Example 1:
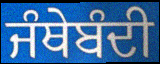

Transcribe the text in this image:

ਜੰਥੇਬੰਦੀ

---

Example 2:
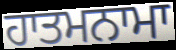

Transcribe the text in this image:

ਹਾਤਮਨਾਮਾ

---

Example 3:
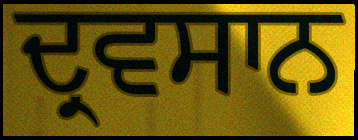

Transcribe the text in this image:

ਦ੍ਰਵਸਾਨ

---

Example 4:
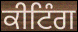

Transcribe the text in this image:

ਕੀਟਿੰਗ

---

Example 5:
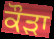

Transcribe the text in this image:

ਕੌਡ਼ਾ